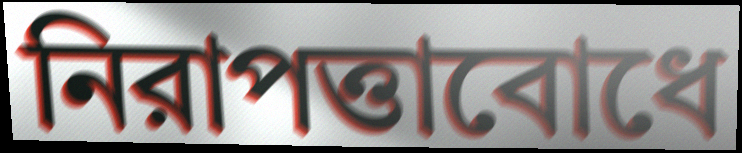
নিরাপত্তাবোধে